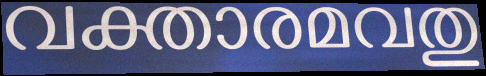
വക്താരമവതു